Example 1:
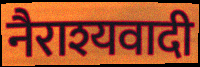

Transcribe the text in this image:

नैराश्यवादी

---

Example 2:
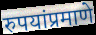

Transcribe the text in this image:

रुपयांप्रमाणे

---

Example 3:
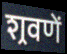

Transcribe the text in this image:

श्रवणें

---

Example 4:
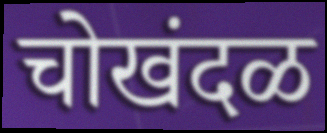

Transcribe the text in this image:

चोखंदळ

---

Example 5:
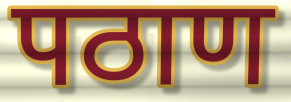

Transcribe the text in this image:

पठाण